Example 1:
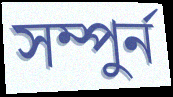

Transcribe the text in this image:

সম্পুৰ্ন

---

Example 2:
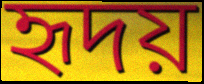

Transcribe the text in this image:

হৃদয়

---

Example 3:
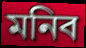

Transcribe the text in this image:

মনিব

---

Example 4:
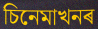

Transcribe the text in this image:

চিনেমাখনৰ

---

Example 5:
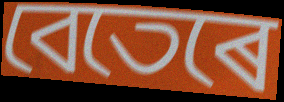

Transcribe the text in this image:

বেতেৰে